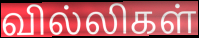
வில்லிகள்